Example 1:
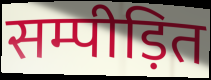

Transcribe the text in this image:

सम्पीड़ित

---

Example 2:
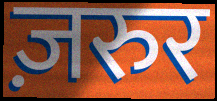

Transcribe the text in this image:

ज़रुर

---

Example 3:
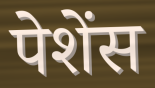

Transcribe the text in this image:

पेशेंस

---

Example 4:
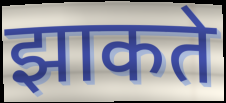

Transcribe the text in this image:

झाकते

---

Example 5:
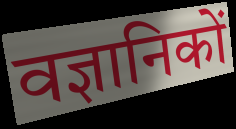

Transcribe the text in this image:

वज्ञानिकों